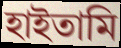
হাইতামি